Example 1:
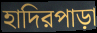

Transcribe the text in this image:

হাদিরপাড়া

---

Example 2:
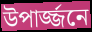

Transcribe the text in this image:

উপার্জ্জনে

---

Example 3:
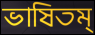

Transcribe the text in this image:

ভাষিতম্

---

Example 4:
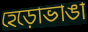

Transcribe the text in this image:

হেড়োভাঙা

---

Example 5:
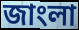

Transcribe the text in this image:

জাংলা